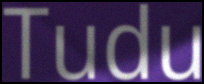
Tudu